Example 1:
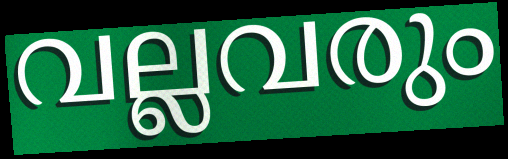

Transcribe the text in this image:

വല്ലവരും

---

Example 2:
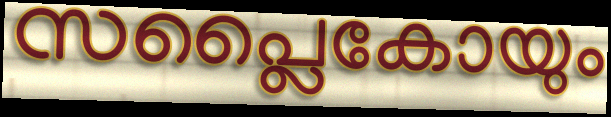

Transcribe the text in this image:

സപ്ലൈകോയും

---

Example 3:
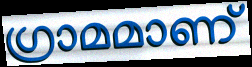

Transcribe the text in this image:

ഗ്രാമമാണ്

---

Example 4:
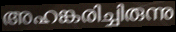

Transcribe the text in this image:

അഹങ്കരിച്ചിരുന്നു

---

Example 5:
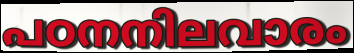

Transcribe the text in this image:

പഠനനിലവാരം